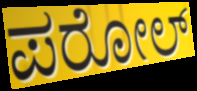
ಪರೋಲ್